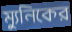
ম্যুনিকের